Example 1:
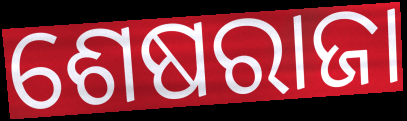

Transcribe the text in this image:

ଶେଷରାଜା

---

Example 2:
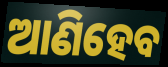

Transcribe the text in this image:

ଆଣିହେବ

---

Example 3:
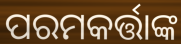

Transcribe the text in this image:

ପରମକର୍ତ୍ତାଙ୍କ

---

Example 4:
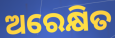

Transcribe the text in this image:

ଅରେକ୍ଷିତ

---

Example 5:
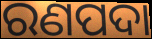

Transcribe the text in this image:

ରଣପଦା